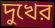
দুখের